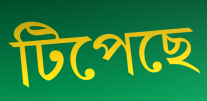
টিপেছে